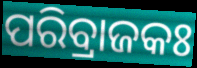
ପରିବ୍ରାଜକଃ